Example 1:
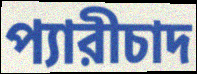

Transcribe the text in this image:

প্যারীচাদ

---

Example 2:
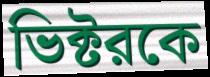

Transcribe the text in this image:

ভিক্টরকে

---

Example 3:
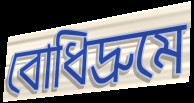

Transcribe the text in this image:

বোধিদ্রুমে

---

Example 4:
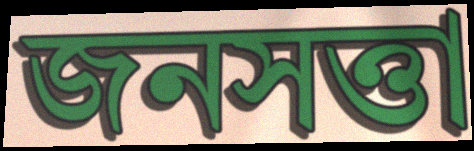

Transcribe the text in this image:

জনসত্তা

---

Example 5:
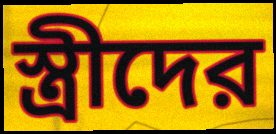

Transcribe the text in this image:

স্ত্রীদের